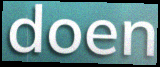
doen